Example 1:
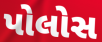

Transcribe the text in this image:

પોલોસ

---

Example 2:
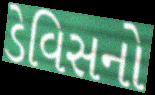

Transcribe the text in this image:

ડેવિસનો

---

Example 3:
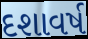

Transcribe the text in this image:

દશાવર્ષ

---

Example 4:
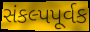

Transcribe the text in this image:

સંકલ્પપૂર્વક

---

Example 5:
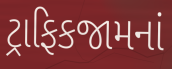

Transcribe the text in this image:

ટ્રાફિકજામનાં